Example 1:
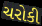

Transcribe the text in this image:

ચરોકી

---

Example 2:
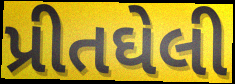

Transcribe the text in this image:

પ્રીતઘેલી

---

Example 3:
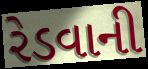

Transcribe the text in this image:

રેડવાની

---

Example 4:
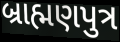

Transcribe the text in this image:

બ્રાહ્મણપુત્ર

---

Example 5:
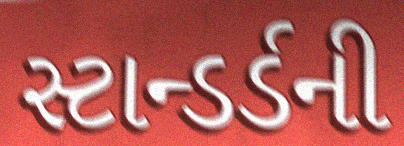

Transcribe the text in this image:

સ્ટાન્ડર્ડની